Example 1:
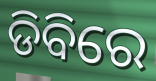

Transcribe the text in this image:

ଡିବିରେ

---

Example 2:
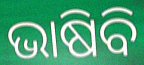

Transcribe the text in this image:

ଭାଷିବି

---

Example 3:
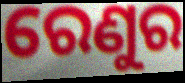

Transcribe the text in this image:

ରେଣୁର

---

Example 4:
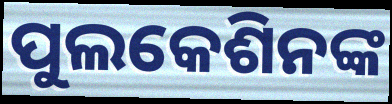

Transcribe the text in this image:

ପୁଲକେଶିନଙ୍କ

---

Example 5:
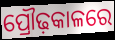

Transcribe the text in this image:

ପ୍ରୌଢ଼କାଳରେ